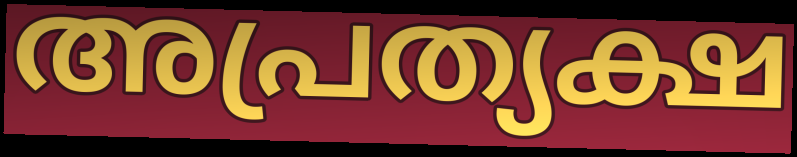
അപ്രത്യക്ഷ